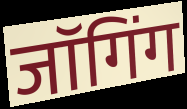
जॉगिंग